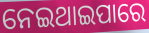
ନେଇଥାଇପାରେ